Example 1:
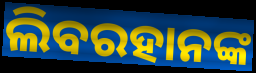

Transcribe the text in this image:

ଲିବରହାନଙ୍କ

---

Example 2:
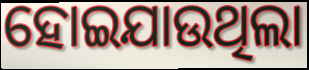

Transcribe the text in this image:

ହୋଇଯାଉଥିଲା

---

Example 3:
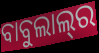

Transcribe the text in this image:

ବାବୁଲାଲ୍‍ର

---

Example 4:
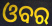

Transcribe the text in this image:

ଓବର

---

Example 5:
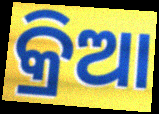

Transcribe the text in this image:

କ୍ରିଆ